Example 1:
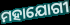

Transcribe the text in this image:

ମହାଯୋଗୀ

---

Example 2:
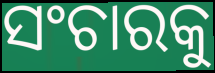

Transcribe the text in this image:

ସଂଚାରକୁ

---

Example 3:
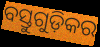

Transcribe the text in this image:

ବସ୍ତୁଗୁଡ଼ିକର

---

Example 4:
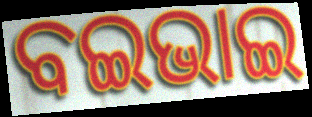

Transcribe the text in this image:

ବଇଭାଇ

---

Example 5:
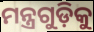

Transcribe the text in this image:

ମନ୍ତ୍ରଗୁଡ଼ିକୁ